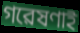
গৱেষণাই